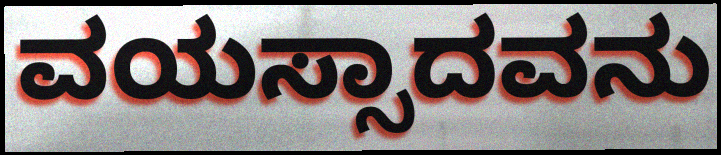
ವಯಸ್ಸಾದವನು